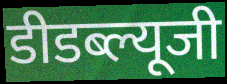
डीडब्ल्यूजी